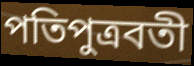
পতিপুত্রবতী